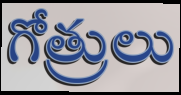
గోత్రులు